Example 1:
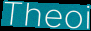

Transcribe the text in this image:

Theoi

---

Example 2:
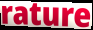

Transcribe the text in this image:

rature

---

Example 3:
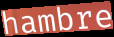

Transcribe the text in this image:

hambre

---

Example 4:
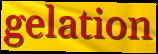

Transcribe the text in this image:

gelation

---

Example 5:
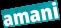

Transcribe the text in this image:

amani